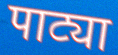
पाट्या